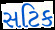
સટિક